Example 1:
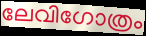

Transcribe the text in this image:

ലേവിഗോത്രം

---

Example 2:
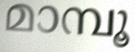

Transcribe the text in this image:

മാമ്പൂ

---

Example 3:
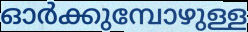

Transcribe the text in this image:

ഓർക്കുമ്പോഴുള്ള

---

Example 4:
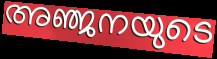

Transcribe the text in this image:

അഞ്ജനയുടെ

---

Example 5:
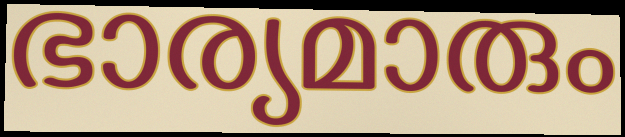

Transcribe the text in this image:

ഭാര്യമാരും